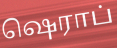
ஷெராப்